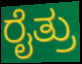
ರೈತ್ರು